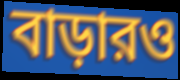
বাড়ারও